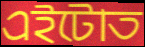
এইটোত